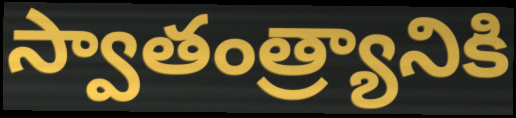
స్వాతంత్ర్యానికి